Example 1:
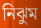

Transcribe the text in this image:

নিঝুম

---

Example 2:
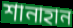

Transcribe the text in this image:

শানাহান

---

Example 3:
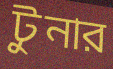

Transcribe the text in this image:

টুনার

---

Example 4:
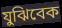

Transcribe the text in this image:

যুঝিবেক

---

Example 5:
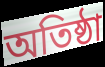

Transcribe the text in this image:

অতিষ্ঠা